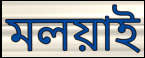
মলয়াই